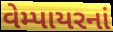
વેમ્પાયરનાં